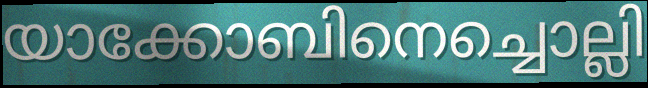
യാക്കോബിനെച്ചൊല്ലി